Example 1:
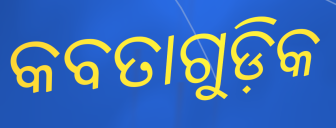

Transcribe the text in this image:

କବତାଗୁଡ଼ିକ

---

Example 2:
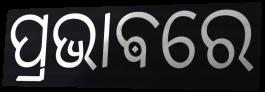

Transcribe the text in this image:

ପ୍ରଭାଵରେ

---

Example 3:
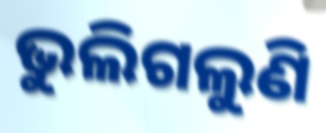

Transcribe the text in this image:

ଭୁଲିଗଲୁଣି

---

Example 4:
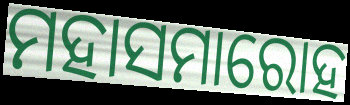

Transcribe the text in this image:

ମହାସମାରୋହ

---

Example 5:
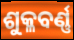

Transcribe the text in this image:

ଶୁକ୍ଳବର୍ଣ୍ଣ